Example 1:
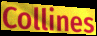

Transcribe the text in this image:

Collines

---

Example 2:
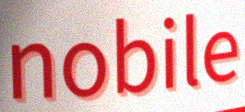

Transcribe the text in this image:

nobile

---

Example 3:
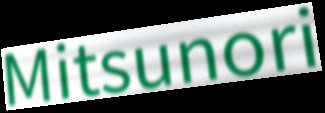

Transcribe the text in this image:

Mitsunori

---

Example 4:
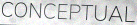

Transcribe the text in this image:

CONCEPTUAL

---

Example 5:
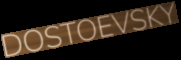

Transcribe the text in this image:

DOSTOEVSKY